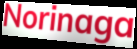
Norinaga